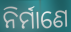
ନିର୍ମାଣେ